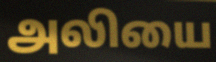
அலியை